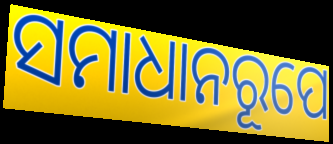
ସମାଧାନରୂପେ